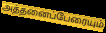
அத்தனைப்பேரையும்